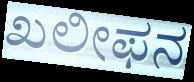
ಖಲೀಫನ